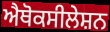
ਐਥੋਕਸੀਲੇਸ਼ਨ